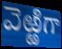
వెఱ్ఱిగా